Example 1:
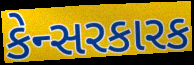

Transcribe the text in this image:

કેન્સરકારક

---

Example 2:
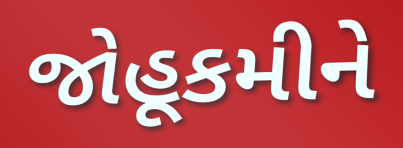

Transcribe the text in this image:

જોહૂકમીને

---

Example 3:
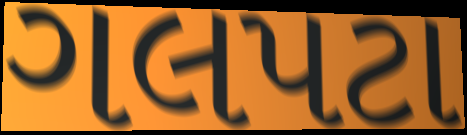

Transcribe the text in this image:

ગલપટા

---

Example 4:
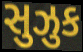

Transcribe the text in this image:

સુઝુક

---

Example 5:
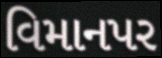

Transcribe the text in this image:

વિમાનપર